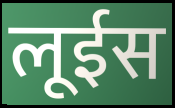
लूईस